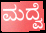
ಮದ್ವೆ